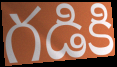
గడికి